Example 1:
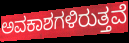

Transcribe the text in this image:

ಅವಕಾಶಗಳಿರುತ್ತವೆ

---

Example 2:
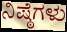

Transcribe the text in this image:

ನಿಷ್ಠೆಗಳು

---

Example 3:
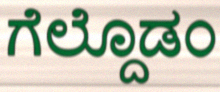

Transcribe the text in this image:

ಗೆಲ್ದೊಡಂ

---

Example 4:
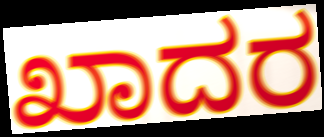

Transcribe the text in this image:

ಖಾದರ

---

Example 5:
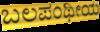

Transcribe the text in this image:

ಬಲಪಂಥೀಯ